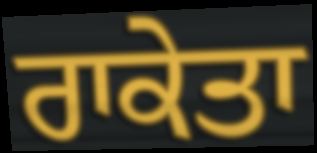
ਰਾਕੇਤਾ